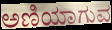
ಅಣಿಯಾಗುವ